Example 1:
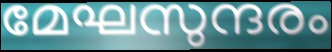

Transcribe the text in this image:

മേഘസുന്ദരം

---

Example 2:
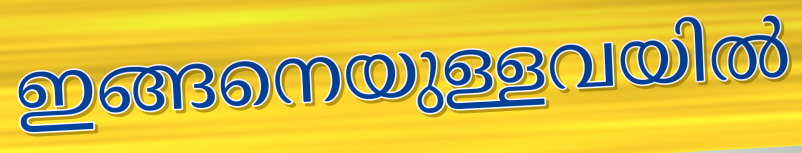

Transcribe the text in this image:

ഇങ്ങനെയുള്ളവയിൽ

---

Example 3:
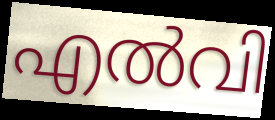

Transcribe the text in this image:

എൽവി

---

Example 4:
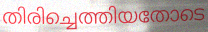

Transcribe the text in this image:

തിരിച്ചെത്തിയതോടെ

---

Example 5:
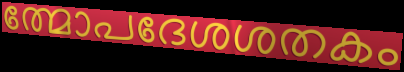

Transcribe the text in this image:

ത്മോപദേശശതകം